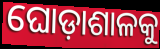
ଘୋଡ଼ାଶାଳକୁ